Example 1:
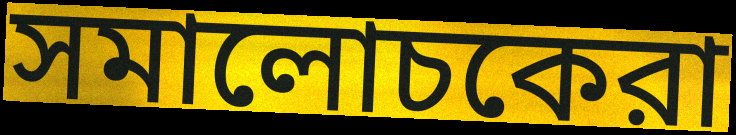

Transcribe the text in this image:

সমালোচকেরা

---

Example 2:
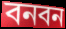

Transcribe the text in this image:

বনবন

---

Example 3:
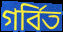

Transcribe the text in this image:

গর্বিত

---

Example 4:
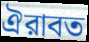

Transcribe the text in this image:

ঐরাবত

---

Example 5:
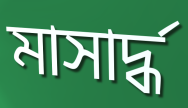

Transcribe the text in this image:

মাসার্দ্ধ